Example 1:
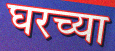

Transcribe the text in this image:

घरच्या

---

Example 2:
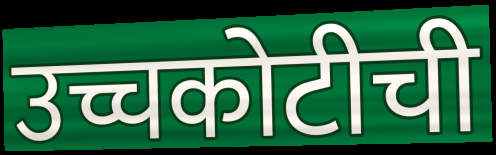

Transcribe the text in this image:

उच्चकोटीची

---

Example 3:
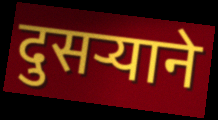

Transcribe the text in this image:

दुसर्‍याने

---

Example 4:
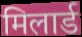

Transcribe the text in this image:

मिलार्ड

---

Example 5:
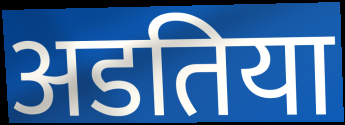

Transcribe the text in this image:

अडतिया